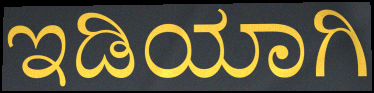
ಇಡಿಯಾಗಿ